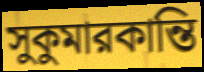
সুকুমারকান্তি